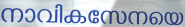
നാവികസേനയെ